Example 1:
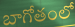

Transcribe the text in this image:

బాగోతంలో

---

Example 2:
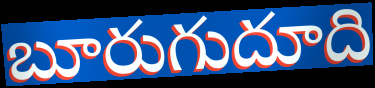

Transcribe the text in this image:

బూరుగుదూది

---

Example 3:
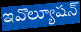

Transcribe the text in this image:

ఇవొల్యూషన్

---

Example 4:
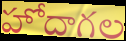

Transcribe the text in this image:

హోదాగల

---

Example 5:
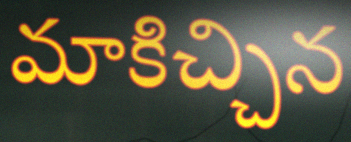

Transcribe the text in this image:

మాకిచ్చిన